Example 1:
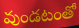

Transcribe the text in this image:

వుండటంతో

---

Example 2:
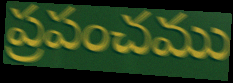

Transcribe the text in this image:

ప్రపంచము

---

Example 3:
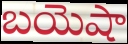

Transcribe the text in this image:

బయెషా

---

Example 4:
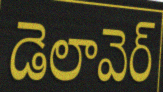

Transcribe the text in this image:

డెలావెర్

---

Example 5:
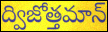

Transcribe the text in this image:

ద్విజోత్తమాన్